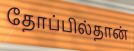
தோப்பில்தான்